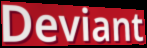
Deviant